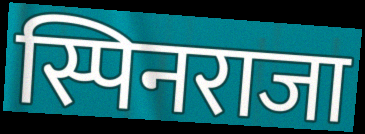
स्पिनराजा